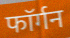
फॉर्गन